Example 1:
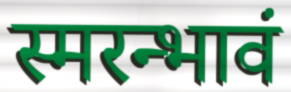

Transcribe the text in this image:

स्मरन्भावं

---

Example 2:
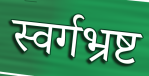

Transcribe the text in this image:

स्वर्गभ्रष्ट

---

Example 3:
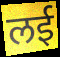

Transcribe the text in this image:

लई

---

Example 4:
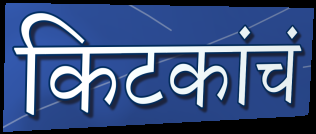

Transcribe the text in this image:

किटकांचं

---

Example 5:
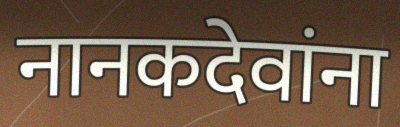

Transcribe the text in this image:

नानकदेवांना